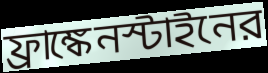
ফ্রাঙ্কেনস্টাইনের